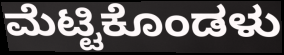
ಮೆಟ್ಟಿಕೊಂಡಳು